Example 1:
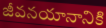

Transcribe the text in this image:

జీవనయానానికి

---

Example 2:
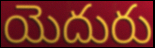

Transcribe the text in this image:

యెదురు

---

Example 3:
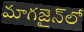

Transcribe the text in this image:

మాగజైన్‌లో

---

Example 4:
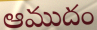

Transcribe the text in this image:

ఆముదం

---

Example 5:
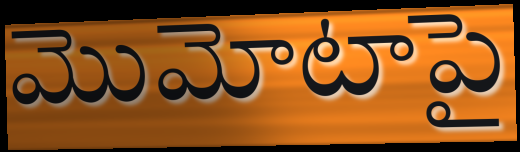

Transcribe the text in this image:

మొమోటాపై